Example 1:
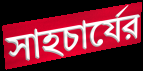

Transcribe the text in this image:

সাহচার্যের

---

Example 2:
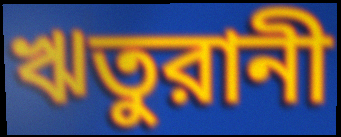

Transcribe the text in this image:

ঋতুরানী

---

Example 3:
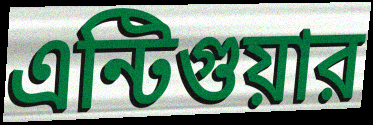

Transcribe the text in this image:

এন্টিগুয়ার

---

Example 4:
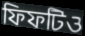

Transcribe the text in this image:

ফিফটিও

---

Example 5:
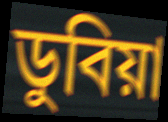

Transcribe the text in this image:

ডুবিয়া